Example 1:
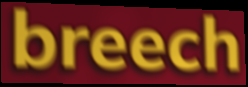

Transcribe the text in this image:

breech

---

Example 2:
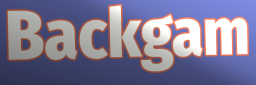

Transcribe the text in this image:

Backgam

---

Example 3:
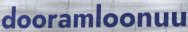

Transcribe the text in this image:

dooramloonuu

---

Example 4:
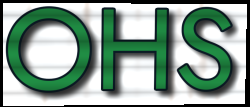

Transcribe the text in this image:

OHS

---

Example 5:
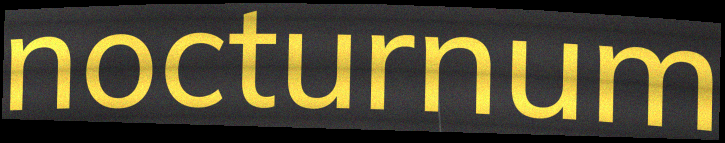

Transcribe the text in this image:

nocturnum